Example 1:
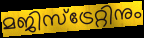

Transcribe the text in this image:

മജിസ്ട്രേറ്റിനും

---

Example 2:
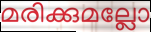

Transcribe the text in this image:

മരിക്കുമല്ലോ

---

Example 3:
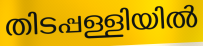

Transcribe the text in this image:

തിടപ്പള്ളിയിൽ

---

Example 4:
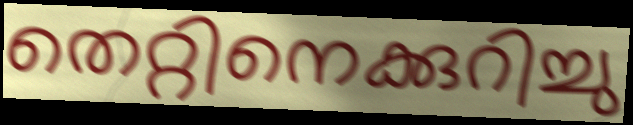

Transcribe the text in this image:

തെറ്റിനെക്കുറിച്ചു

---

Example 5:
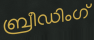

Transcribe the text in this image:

ബ്രീഡിംഗ്